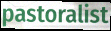
pastoralist